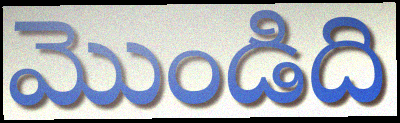
మొండిది